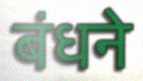
बंधने